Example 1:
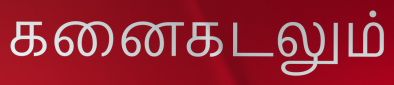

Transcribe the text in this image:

கனைகடலும்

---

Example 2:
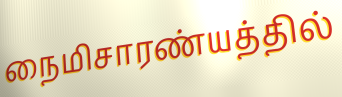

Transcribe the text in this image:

நைமிசாரண்யத்தில்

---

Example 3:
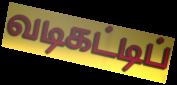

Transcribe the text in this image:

வடிகட்டிப்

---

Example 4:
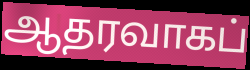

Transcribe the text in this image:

ஆதரவாகப்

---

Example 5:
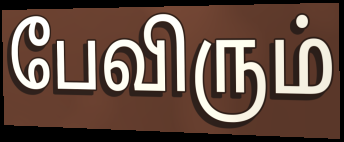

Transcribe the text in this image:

பேவிரும்